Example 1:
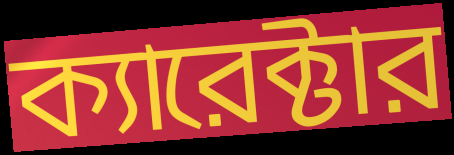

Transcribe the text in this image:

ক্যারেক্টার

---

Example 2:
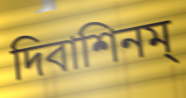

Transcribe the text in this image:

দিবাশিনম্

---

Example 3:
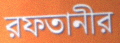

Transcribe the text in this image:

রফতানীর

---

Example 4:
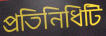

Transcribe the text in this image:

প্রতিনিধিটি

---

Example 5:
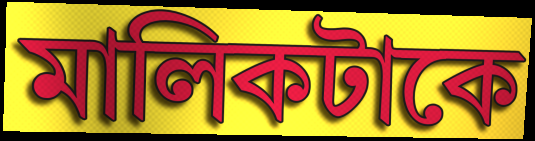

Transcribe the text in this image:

মালিকটাকে